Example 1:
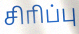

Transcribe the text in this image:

சிரிப்பு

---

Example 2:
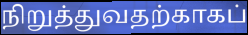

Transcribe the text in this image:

நிறுத்துவதற்காகப்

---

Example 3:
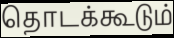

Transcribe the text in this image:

தொடக்கூடும்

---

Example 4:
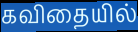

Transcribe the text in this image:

கவிதையில்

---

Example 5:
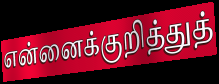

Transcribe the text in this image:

என்னைக்குறித்துத்